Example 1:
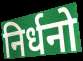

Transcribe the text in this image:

निर्धनो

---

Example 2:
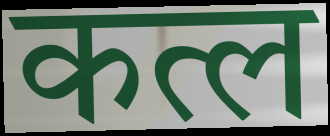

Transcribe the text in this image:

कत्ल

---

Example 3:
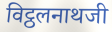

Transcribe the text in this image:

विट्ठलनाथजी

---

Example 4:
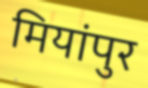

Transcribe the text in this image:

मियांपुर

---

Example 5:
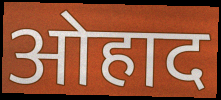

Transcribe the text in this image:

ओहाद